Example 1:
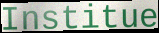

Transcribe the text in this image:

Institue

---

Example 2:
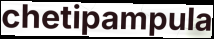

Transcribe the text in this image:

chetipampula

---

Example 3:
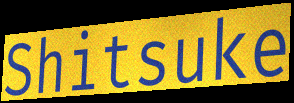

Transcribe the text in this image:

Shitsuke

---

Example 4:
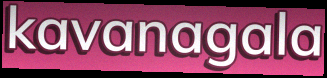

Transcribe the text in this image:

kavanagala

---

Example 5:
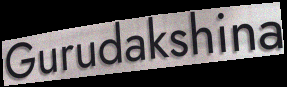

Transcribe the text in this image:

Gurudakshina